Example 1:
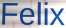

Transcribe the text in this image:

Felix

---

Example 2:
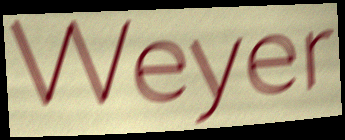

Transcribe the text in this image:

Weyer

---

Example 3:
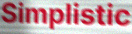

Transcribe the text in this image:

Simplistic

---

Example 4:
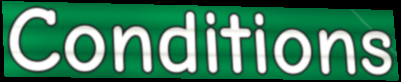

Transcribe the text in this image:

Conditions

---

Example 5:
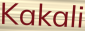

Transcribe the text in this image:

Kakali